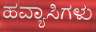
ಹವ್ಯಾಸಿಗಳು